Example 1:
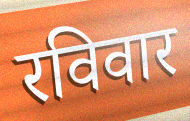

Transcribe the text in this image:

रविवार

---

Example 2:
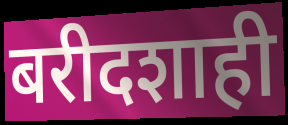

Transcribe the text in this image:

बरीदशाही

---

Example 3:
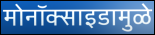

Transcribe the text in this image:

मोनॉक्साइडामुळे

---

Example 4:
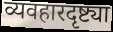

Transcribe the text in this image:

व्यवहारदृष्ट्या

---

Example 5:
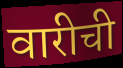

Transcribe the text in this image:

वारीची